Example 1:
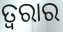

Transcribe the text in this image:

ତ୍ୱରାର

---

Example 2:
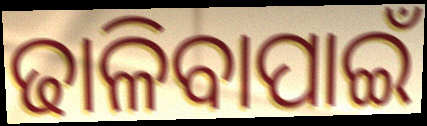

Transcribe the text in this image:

ଢାଳିବାପାଇଁ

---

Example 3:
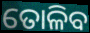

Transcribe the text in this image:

ତୋଳିବ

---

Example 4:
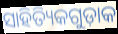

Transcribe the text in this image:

ସାହିତ୍ୟିକଗୁଡ଼ାକ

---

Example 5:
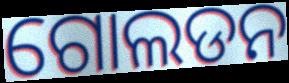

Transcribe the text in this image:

ଗୋଲଡନ